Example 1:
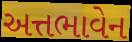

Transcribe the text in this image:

અત્તભાવેન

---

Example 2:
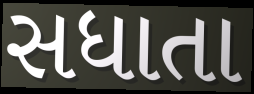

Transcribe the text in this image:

સધાતા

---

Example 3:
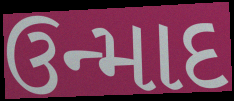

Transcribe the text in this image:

ઉન્માદ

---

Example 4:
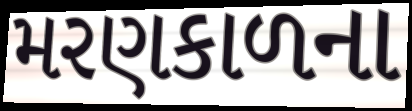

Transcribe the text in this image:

મરણકાળના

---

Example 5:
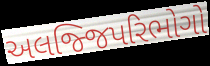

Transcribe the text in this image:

અલજ્જિપરિભોગો